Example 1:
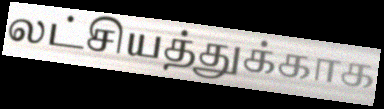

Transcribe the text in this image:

லட்சியத்துக்காக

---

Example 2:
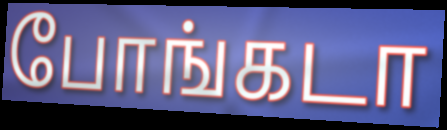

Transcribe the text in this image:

போங்கடா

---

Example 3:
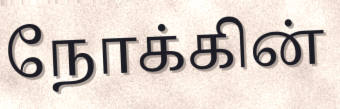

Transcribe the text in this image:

நோக்கின்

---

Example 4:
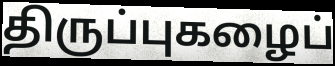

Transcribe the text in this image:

திருப்புகழைப்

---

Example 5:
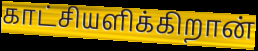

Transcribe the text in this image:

காட்சியளிக்கிறான்